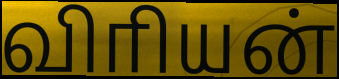
விரியன்